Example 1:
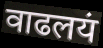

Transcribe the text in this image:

वाढलयं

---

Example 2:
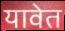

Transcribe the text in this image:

यावेत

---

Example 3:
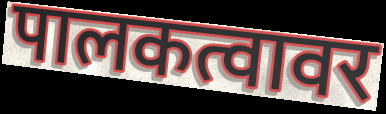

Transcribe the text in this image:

पालकत्वावर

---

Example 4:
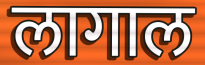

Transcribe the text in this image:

लागाल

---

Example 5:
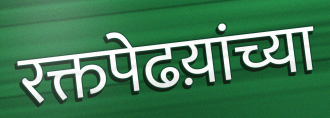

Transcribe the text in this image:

रक्तपेढय़ांच्या